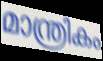
മാന്ത്രികം